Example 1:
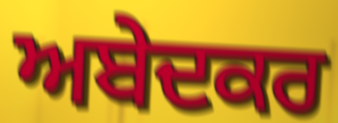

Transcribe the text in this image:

ਅਬੇਦਕਰ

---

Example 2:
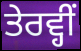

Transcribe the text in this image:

ਤੇਰਵ੍ਹੀਂ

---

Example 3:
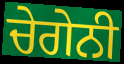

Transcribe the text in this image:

ਚੇਗੇਨੀ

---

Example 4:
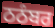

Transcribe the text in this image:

ਠਠੰਬਰ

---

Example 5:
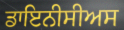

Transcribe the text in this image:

ਡਾਇਨੀਸੀਅਸ